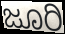
ಜೂರಿ